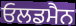
ਓਲਡਮੈਨ